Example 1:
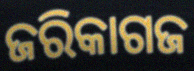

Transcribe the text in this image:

ଜରିକାଗଜ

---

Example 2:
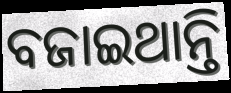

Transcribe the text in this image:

ବଜାଇଥାନ୍ତି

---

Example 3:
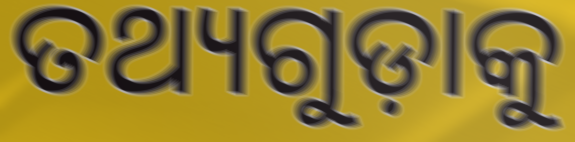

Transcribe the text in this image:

ତଥ୍ୟଗୁଡ଼ାକୁ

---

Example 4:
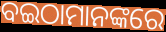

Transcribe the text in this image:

ବଇଠାମାନଙ୍କରେ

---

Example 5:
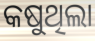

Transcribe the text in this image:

କଷୁଥିଲା